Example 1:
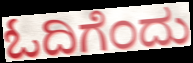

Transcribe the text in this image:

ಓದಿಗೆಂದು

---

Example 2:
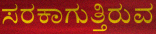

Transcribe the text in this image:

ಸರಕಾಗುತ್ತಿರುವ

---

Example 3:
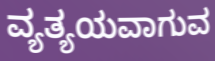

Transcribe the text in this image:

ವ್ಯತ್ಯಯವಾಗುವ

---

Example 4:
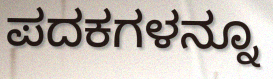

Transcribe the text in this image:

ಪದಕಗಳನ್ನೂ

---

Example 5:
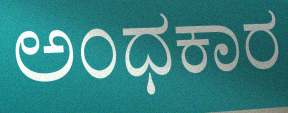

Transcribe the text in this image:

ಅಂಧಕಾರ